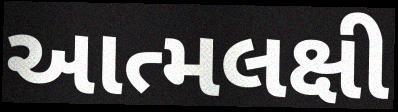
આત્મલક્ષી